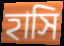
হাসি